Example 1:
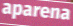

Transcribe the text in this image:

aparena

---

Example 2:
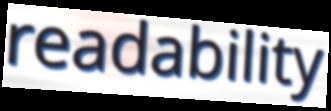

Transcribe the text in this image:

readability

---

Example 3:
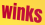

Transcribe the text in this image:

winks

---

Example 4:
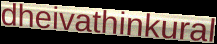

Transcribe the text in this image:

dheivathinkural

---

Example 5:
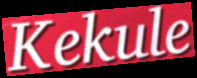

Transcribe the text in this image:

Kekule